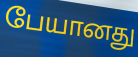
பேயானது